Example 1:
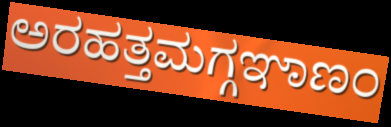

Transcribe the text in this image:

ಅರಹತ್ತಮಗ್ಗಞಾಣಂ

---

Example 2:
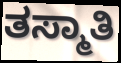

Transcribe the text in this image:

ತಸ್ಮಾತಿ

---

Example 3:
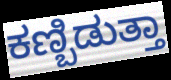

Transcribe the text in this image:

ಕಣ್ಬಿಡುತ್ತಾ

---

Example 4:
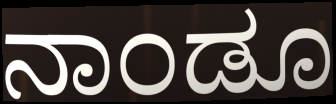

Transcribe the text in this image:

ನಾಂಡೂ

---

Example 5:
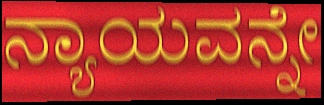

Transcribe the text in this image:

ನ್ಯಾಯವನ್ನೇ